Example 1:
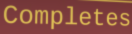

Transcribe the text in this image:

Completes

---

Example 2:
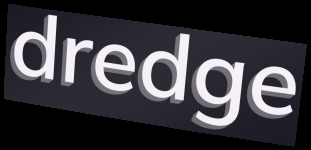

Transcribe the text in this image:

dredge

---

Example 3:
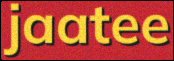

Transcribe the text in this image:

jaatee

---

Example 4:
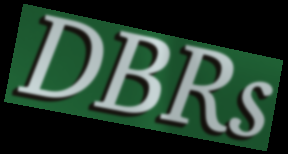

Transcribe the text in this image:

DBRs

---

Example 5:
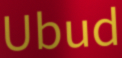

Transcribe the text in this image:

Ubud